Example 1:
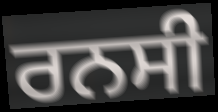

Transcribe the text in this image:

ਰਨਸੀ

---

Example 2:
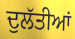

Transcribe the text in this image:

ਦੁਲੱਤੀਆਂ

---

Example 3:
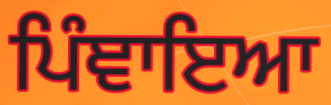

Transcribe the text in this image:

ਪਿੰਞਾਇਆ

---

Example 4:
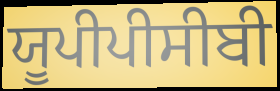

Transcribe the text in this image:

ਯੂਪੀਪੀਸੀਬੀ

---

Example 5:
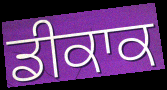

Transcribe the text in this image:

ਡੀਕਾਕ